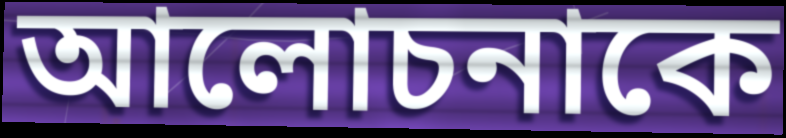
আলোচনাকে